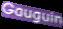
Gauguin